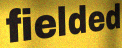
fielded